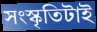
সংস্কৃতিটাই